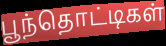
பூந்தொட்டிகள்